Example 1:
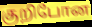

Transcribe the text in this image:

குறிபோன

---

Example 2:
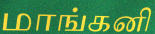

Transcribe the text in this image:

மாங்கனி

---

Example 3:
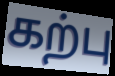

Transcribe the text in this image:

கற்பு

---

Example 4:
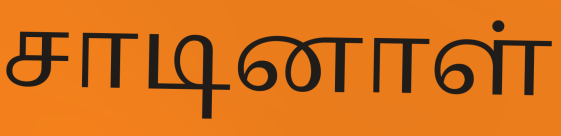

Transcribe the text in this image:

சாடினாள்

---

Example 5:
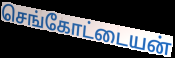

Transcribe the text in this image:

செங்கோட்டையன்